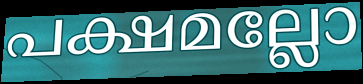
പക്ഷമല്ലോ